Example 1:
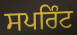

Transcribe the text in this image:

ਸਪਰਿੰਟ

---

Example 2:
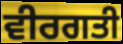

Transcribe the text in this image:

ਵੀਰਗਤੀ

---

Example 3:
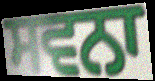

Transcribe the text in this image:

ਸਵਨਾ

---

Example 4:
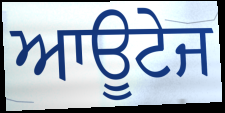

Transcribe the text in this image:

ਆਊਟੇਜ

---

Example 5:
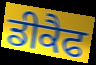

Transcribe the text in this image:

ਡੀਕੈਫ